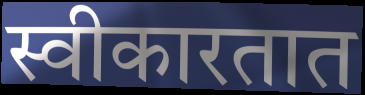
स्वीकारतात